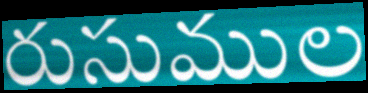
రుసుముల